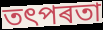
তৎপৰতা